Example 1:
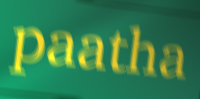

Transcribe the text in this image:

paatha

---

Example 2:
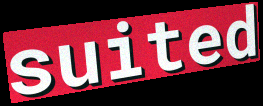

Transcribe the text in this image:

suited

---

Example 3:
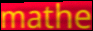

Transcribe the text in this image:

mathe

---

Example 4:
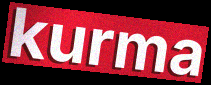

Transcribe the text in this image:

kurma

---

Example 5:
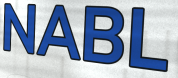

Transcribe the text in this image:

NABL